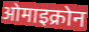
ओमाइक्रोन